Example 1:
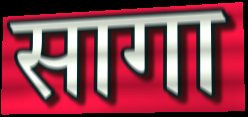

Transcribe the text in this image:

सागा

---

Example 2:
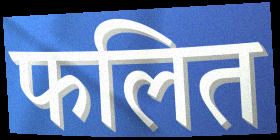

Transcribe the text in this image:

फलित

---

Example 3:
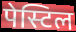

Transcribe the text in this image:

पेस्टिल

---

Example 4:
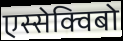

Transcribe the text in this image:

एस्सेक्विबो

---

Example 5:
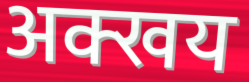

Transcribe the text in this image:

अक्खय